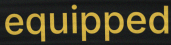
equipped